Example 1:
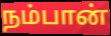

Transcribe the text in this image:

நம்பான்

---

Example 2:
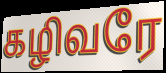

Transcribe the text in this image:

கழிவரே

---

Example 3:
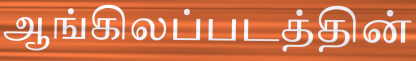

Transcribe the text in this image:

ஆங்கிலப்படத்தின்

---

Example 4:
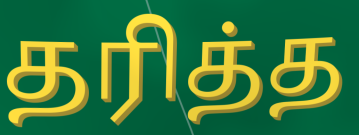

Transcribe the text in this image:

தரித்த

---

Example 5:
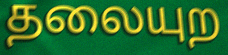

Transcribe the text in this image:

தலையுற